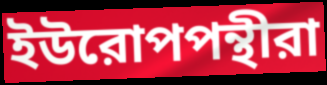
ইউরোপপন্থীরা